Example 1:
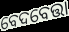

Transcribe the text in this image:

ବେଦବେତ୍ତା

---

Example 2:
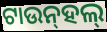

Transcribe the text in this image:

ଟାଉନ୍‌ହଲ୍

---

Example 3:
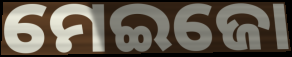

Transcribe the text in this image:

ମେଇଜୋ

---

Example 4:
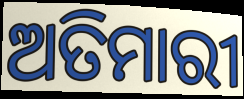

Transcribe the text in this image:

ଅତିମାରୀ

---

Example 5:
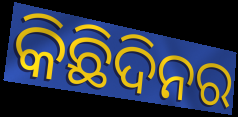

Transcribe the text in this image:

କିଛିଦିନର